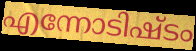
എന്നോടിഷ്ടം